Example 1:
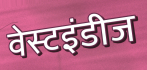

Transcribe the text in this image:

वेस्टइंडीज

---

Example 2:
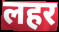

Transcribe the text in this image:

लहर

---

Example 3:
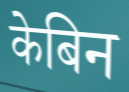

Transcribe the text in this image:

केबिन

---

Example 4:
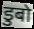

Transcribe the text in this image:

डुबो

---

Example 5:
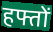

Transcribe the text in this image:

हफ्तों